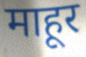
माहूर